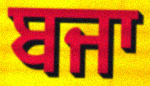
ਬਜਾ